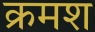
क्रमश